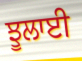
ਝੂਲਾਈ